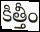
కిత్తీం